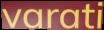
varati